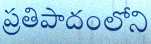
ప్రతిపాదంలోని